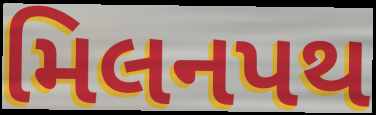
મિલનપથ